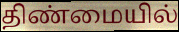
திண்மையில்